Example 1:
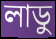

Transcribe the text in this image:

লাডু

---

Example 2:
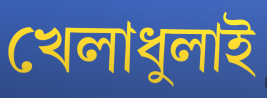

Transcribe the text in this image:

খেলাধুলাই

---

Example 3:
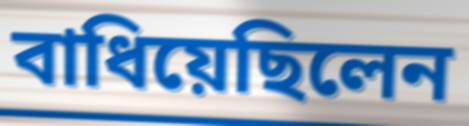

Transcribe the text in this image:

বাধিয়েছিলেন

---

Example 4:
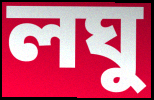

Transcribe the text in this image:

লঘু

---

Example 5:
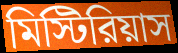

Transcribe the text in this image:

মিস্টিরিয়াস